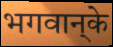
भगवान्‌के